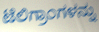
ಟೆಲಿಗ್ರಾಂಗಳನ್ನು